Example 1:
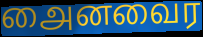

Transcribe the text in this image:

அைனவைர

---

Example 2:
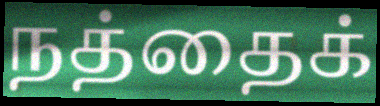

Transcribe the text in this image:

நத்தைக்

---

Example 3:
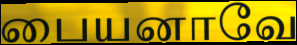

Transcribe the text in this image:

பையனாவே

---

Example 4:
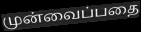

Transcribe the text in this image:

முன்வைப்பதை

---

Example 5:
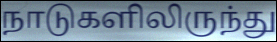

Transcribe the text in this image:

நாடுகளிலிருந்து